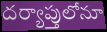
దర్యాప్తులోనూ